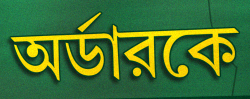
অর্ডারকে